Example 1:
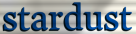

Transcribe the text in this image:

stardust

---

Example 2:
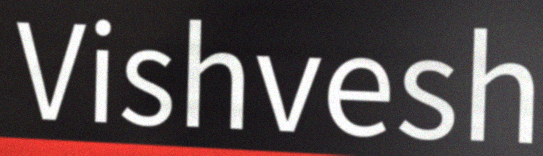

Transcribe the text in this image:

Vishvesh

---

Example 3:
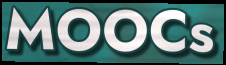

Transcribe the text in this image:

MOOCs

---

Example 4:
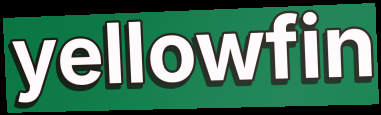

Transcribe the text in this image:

yellowfin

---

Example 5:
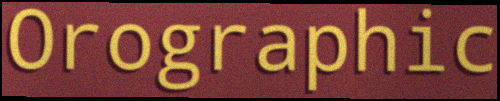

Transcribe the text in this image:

Orographic